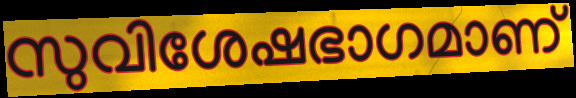
സുവിശേഷഭാഗമാണ്